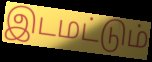
இடமட்டும்